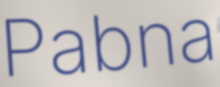
Pabna